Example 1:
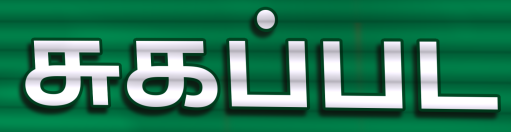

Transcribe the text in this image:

சுகப்பட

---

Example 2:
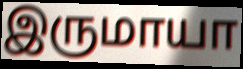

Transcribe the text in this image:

இருமாயா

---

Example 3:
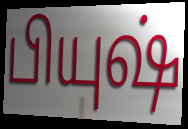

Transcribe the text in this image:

பியுஷ்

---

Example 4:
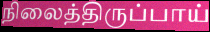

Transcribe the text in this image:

நிலைத்திருப்பாய்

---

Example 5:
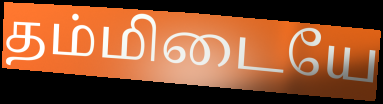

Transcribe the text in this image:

தம்மிடையே